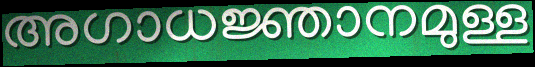
അഗാധജ്ഞാനമുള്ള